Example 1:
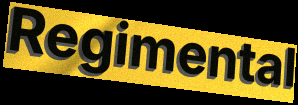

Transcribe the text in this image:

Regimental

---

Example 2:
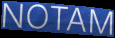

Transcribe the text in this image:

NOTAM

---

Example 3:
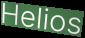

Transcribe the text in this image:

Helios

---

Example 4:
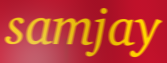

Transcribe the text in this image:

samjay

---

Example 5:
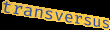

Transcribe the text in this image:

transversus